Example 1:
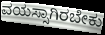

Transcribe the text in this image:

ವಯಸ್ಸಾಗಿರಬೇಕು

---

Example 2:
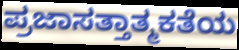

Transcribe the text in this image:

ಪ್ರಜಾಸತ್ತಾತ್ಮಕತೆಯ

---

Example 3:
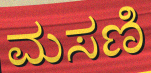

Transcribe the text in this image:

ಮಸಣಿ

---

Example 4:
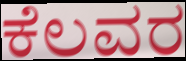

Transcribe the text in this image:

ಕೆಲವರ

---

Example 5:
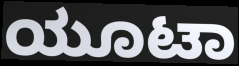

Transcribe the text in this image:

ಯೂಟಾ